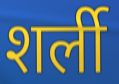
शर्ली